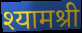
श्यामश्री